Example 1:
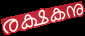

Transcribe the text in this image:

രക്ഷകനു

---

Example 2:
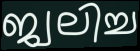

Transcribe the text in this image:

ജ്വലിച്ച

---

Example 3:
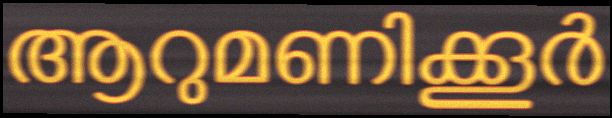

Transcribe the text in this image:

ആറുമണിക്കൂർ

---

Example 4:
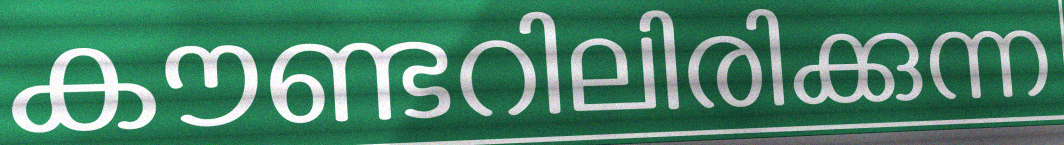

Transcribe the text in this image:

കൗണ്ടറിലിരിക്കുന്ന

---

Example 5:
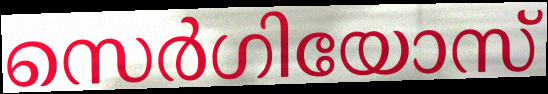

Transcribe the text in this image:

സെർഗിയോസ്